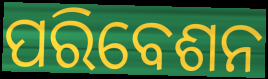
ପରିବେଶନ